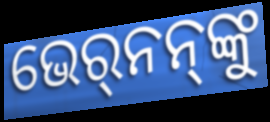
ଭେର୍‍ନନ୍‌ଙ୍କୁ